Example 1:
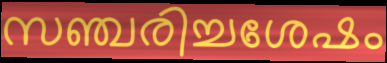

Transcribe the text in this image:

സഞ്ചരിച്ചശേഷം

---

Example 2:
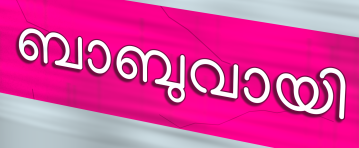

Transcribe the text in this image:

ബാബുവായി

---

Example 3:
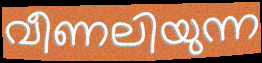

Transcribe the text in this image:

വീണലിയുന്ന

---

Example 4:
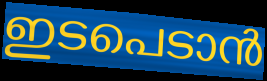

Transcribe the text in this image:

ഇടപെടാൻ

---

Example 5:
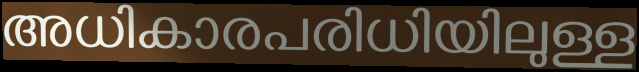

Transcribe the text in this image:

അധികാരപരിധിയിലുള്ള